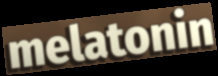
melatonin